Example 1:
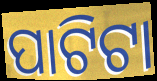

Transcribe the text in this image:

ପାଟିଟା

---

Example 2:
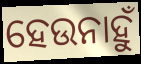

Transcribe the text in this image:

ହେଉନାହୁଁ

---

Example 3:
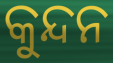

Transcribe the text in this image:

କୁନ୍ଦନ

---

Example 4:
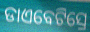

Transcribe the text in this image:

ଡାଏବେଟିସ୍ରେ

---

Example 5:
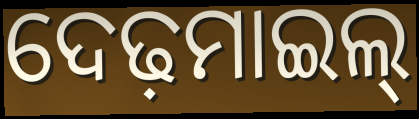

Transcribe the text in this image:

ଦେଢ଼ମାଇଲ୍